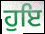
ਹੁਇ